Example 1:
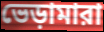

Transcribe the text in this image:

ভেড়ামারা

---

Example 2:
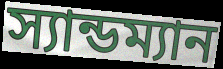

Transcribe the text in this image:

স্যান্ডম্যান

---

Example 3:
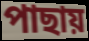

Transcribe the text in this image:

পাছায়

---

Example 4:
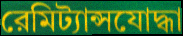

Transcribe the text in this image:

রেমিট্যান্সযোদ্ধা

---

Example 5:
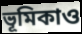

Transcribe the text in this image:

ভূমিকাও